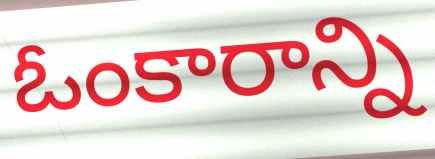
ఓంకారాన్ని